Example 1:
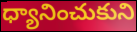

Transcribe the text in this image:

ధ్యానించుకుని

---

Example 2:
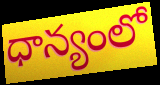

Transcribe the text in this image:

ధాన్యంలో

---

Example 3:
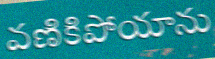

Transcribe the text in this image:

వణికిపోయాను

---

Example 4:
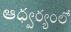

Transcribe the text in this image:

ఆధ్వర్యంలో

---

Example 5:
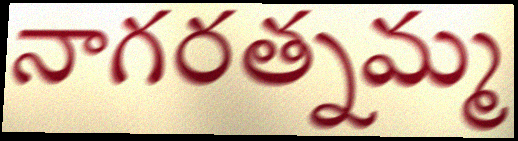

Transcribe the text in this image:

నాగరత్నమ్మ